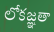
లోకజ్ఞతా